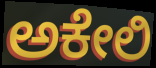
ಅಕೇಲಿ